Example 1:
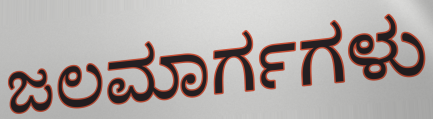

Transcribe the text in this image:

ಜಲಮಾರ್ಗಗಳು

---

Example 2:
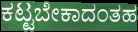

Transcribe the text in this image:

ಕಟ್ಟಬೇಕಾದಂತಹ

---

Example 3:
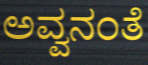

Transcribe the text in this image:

ಅವ್ವನಂತೆ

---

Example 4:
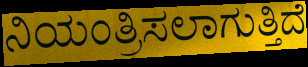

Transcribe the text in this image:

ನಿಯಂತ್ರಿಸಲಾಗುತ್ತಿದೆ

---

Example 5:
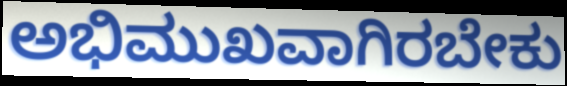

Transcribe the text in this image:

ಅಭಿಮುಖವಾಗಿರಬೇಕು